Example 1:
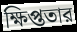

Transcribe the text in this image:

ক্ষিপ্ততার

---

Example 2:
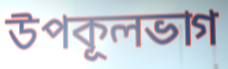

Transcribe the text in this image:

উপকূলভাগ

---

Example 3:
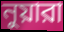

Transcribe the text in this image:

নুয়ারা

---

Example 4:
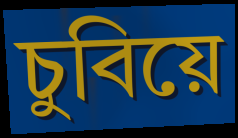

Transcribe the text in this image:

চুবিয়ে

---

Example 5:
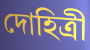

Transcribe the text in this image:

দোহিত্রী